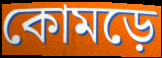
কোমড়ে